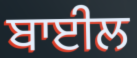
ਬਾਈਲ